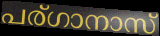
പര്ഗാനാസ്